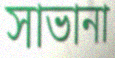
সাভানা